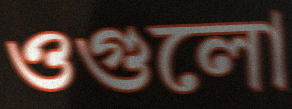
ওগুলো